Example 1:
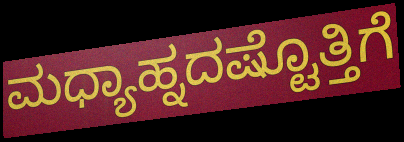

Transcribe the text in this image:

ಮಧ್ಯಾಹ್ನದಷ್ಟೊತ್ತಿಗೆ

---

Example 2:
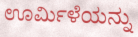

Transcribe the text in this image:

ಊರ್ಮಿಳೆಯನ್ನು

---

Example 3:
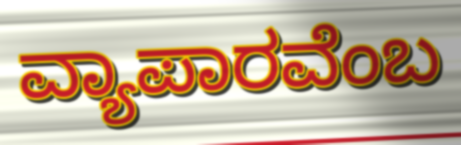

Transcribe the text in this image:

ವ್ಯಾಪಾರವೆಂಬ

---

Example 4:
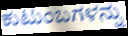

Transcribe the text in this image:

ಕುಟುಂಬಗಳನ್ನು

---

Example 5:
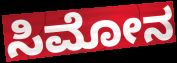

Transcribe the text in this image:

ಸಿಮೋನ